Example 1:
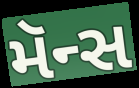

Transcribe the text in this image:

મૅન્સ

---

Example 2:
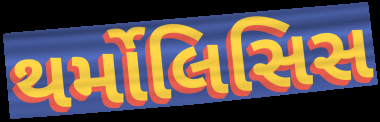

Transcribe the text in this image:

થર્મોલિસિસ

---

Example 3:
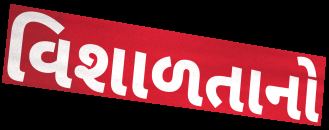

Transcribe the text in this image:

વિશાળતાનો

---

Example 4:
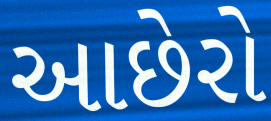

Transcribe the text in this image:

આછેરો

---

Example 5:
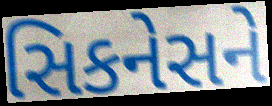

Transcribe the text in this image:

સિકનેસને